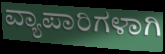
ವ್ಯಾಪಾರಿಗಳಾಗಿ